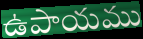
ఉపాయము